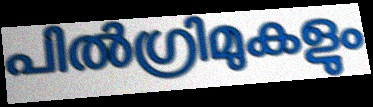
പിൽഗ്രിമുകളും